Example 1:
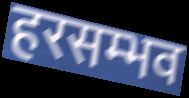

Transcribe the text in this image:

हरसम्भव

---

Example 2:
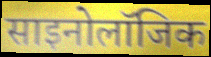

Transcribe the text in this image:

साइनोलॉजिक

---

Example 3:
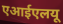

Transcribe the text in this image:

एआईएलयू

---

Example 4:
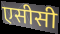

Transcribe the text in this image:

एसीसी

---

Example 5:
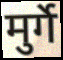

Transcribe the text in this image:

मुर्गे